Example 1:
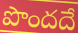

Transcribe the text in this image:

పొందదే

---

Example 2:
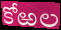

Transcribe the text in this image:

కోఱల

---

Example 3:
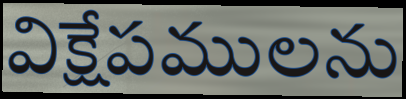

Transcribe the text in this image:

విక్షేపములను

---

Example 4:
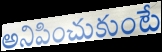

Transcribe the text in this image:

అనిపించుకుంటే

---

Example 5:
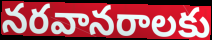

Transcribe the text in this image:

నరవానరాలకు